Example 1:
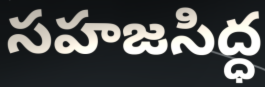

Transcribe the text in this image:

సహజసిద్ధ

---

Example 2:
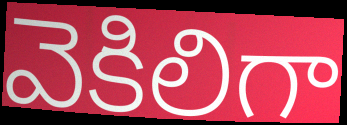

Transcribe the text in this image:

వెకిలిగా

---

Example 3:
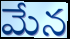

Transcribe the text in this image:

మేన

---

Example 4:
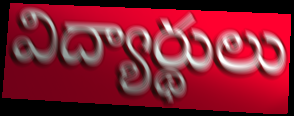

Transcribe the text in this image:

విద్యార్థులు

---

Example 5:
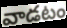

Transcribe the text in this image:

వాడటం